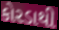
કોરડાથી